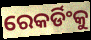
ରେକର୍ଡିଂକୁ